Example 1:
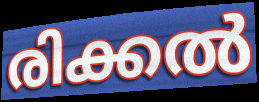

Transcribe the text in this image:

രിക്കൽ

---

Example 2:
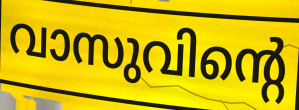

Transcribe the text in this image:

വാസുവിന്റെ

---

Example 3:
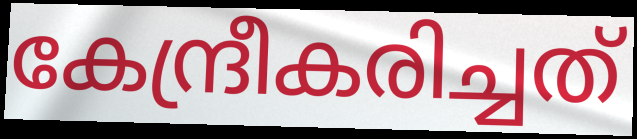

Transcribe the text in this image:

കേന്ദ്രീകരിച്ചത്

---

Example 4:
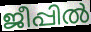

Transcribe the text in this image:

ജീപ്പിൽ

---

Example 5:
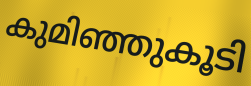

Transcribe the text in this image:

കുമിഞ്ഞുകൂടി